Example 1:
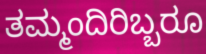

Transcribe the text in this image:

ತಮ್ಮಂದಿರಿಬ್ಬರೂ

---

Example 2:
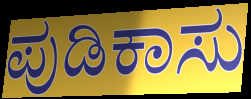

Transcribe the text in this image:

ಪುಡಿಕಾಸು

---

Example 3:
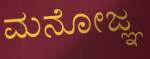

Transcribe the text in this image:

ಮನೋಜ್ಞ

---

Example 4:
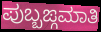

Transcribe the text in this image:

ಪುಬ್ಬಙ್ಗಮಾತಿ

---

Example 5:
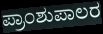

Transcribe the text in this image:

ಪ್ರಾಂಶುಪಾಲರ